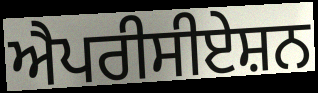
ਐਪਰੀਸੀਏਸ਼ਨ